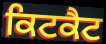
ਕਿਟਕੈਟ